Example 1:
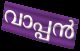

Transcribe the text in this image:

വാപ്പൻ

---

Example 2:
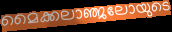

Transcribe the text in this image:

മൈക്കലാഞ്ജലോയുടെ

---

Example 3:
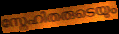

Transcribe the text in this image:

സ്നേഹിതരുടെയും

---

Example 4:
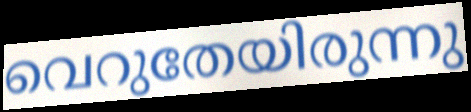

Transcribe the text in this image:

വെറുതേയിരുന്നു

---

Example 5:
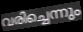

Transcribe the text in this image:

വരിച്ചെന്നും